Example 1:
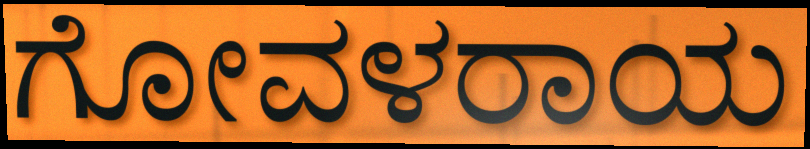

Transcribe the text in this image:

ಗೋವಳರಾಯ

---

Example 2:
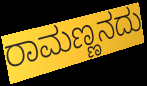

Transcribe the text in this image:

ರಾಮಣ್ಣನದು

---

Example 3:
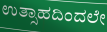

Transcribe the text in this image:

ಉತ್ಸಾಹದಿಂದಲೇ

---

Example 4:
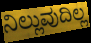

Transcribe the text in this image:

ನಿಲ್ಲುವುದಿಲ್ಲ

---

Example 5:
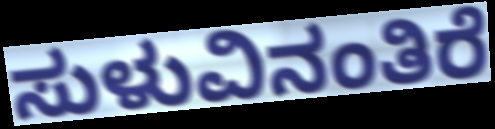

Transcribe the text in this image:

ಸುಳುವಿನಂತಿರೆ